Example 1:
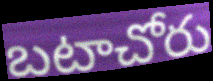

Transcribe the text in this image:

బటాచోరు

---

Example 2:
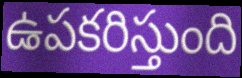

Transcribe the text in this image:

ఉపకరిస్తుంది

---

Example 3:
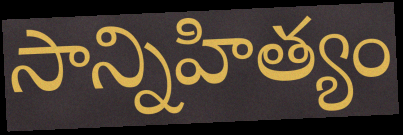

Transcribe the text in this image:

సాన్నిహిత్యం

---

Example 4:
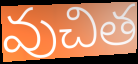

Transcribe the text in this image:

వుచిత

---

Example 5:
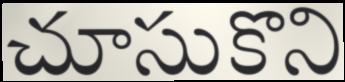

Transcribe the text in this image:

చూసుకొని